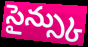
సైన్స్కు